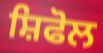
ਸ਼ਿਫੋਲ